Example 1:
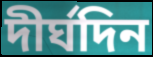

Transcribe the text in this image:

দীর্ঘদিন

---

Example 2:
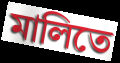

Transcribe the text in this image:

মালিতে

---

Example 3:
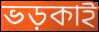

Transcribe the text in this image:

ভড়কাই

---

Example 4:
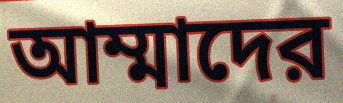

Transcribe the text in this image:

আম্মাদের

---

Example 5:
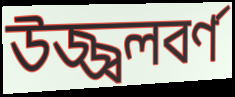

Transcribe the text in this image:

উজ্জ্বলবর্ণ